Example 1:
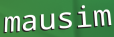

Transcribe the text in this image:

mausim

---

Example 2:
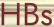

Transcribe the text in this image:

HBs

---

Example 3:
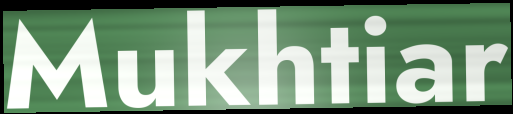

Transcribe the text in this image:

Mukhtiar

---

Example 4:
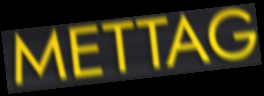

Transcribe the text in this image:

METTAG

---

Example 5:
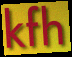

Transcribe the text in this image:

kfh